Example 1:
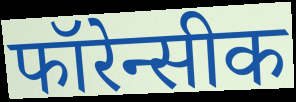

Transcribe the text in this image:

फॉरेन्सीक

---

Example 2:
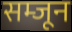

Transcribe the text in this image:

सम्जून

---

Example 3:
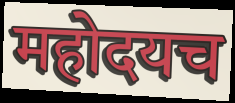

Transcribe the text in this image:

महोदयच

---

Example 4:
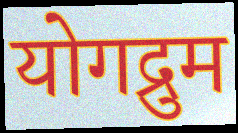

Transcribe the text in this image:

योगद्रुम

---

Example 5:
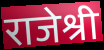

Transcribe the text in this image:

राजेश्री